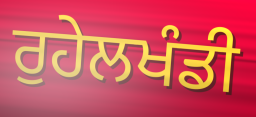
ਰੁਹੇਲਖੰਡੀ